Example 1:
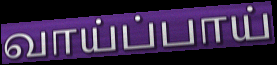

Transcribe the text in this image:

வாய்ப்பாய்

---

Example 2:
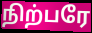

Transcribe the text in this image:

நிற்பரே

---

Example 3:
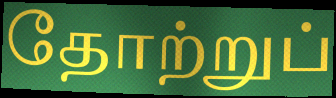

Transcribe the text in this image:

தோற்றுப்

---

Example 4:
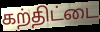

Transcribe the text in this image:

கற்திட்டை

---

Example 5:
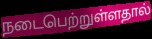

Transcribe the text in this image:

நடைபெற்றுள்ளதால்